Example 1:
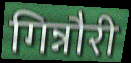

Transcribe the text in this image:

गिन्नौरी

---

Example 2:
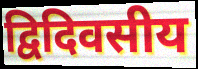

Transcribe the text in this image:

द्विदिवसीय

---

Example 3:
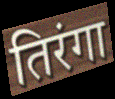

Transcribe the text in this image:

तिरंगा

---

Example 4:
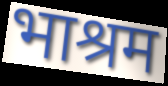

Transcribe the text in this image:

भाश्रम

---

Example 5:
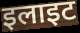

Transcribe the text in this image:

इलाइट